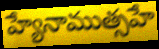
హ్యేనాముత్సహే